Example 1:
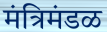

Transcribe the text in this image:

मंत्रिमंडळ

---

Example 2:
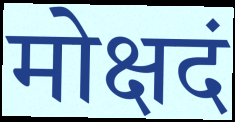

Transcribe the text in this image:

मोक्षदं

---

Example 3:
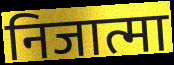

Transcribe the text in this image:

निजात्मा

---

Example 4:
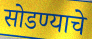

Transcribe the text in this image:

सोडण्याचे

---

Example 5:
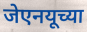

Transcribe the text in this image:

जेएनयूच्या